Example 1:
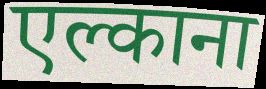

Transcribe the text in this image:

एल्काना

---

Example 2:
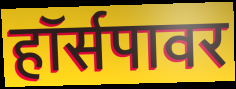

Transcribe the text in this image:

हॉर्सपावर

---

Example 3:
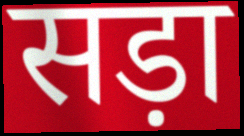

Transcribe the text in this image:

सड़ा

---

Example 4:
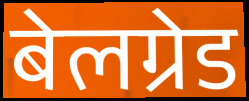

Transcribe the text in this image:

बेलग्रेड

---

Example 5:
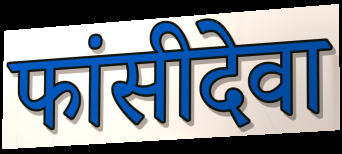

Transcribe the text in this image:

फांसीदेवा